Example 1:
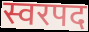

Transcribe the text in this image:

स्वरपद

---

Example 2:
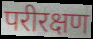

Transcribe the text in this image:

परीरक्षण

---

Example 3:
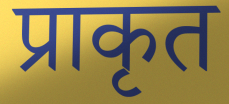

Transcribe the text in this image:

प्राकृत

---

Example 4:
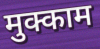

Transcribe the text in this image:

मुक्काम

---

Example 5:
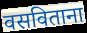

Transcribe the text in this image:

वसविताना